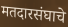
मतदारसंघाचे